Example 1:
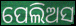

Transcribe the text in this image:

ପେଲିଅସ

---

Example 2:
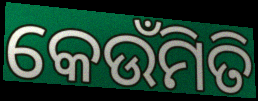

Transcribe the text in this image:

କେଉଁମିତି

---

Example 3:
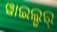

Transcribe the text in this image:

ୱାଇଲ୍ଡର୍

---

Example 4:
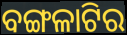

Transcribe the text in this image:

ବଙ୍ଗଳାଟିର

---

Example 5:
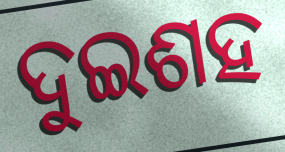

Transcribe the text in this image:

ଦୁଇଶହ